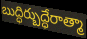
బుద్ధిర్బుద్ధేరాత్మా